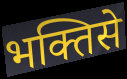
भक्तिसे